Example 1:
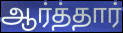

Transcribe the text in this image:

ஆர்த்தார்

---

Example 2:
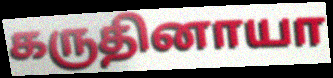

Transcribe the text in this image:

கருதினாயா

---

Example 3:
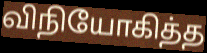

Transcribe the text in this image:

விநியோகித்த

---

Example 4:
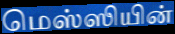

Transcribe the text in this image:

மெஸ்ஸியின்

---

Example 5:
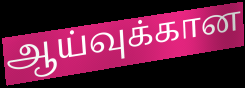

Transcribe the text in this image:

ஆய்வுக்கான